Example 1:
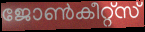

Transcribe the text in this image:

ജോൺകീറ്റ്സ്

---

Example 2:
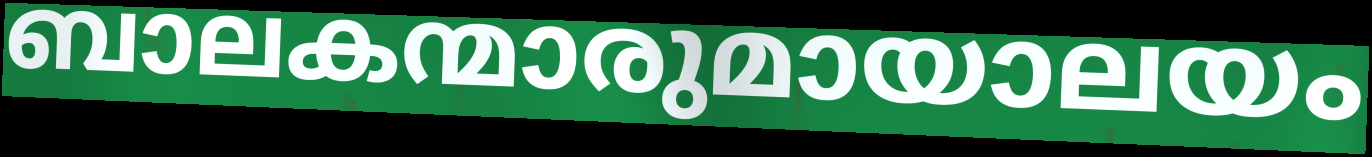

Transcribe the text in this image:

ബാലകന്മാരുമായാലയം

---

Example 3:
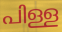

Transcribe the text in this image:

പിള്ള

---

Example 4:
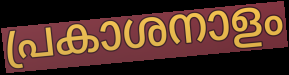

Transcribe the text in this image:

പ്രകാശനാളം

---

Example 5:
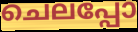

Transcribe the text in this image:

ചെലപ്പോ